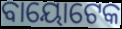
ବାୟୋଟେକ